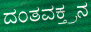
ದಂತವಕ್ತ್ರನ